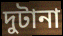
দুটানা